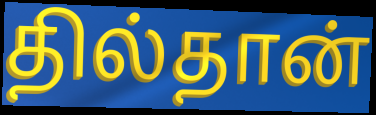
தில்தான்